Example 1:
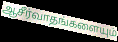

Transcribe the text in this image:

ஆசீர்வாதங்களையும்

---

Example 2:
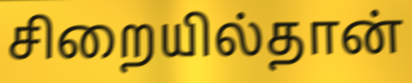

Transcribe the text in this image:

சிறையில்தான்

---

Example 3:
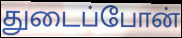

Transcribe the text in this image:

துடைப்போன்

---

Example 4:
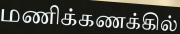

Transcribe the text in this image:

மணிக்கணக்கில்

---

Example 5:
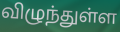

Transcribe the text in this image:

விழுந்துள்ள